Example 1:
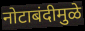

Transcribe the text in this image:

नोटाबंदीमुळे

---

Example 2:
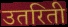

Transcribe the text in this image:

उतरिती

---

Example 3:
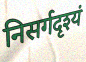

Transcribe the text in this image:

निसर्गदृश्यं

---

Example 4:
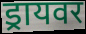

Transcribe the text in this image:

ड्रायवर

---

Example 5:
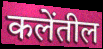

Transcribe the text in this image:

कलेंतील